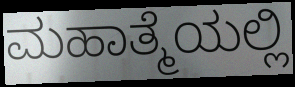
ಮಹಾತ್ಮೆಯಲ್ಲಿ